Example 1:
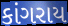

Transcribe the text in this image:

કાંગરાય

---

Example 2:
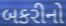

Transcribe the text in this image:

બકરીનો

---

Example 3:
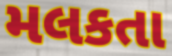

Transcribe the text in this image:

મલકતા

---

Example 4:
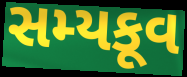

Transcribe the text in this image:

સમ્યકૂવ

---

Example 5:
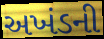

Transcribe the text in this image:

અખંડની